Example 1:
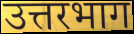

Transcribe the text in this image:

उत्तरभाग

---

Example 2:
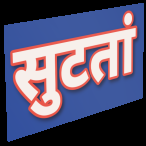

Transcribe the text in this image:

सुटतां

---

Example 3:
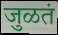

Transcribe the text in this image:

जुळतं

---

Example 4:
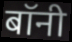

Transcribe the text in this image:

बॉनी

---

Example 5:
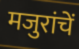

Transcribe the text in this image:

मजुरांचें